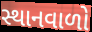
સ્થાનવાળો